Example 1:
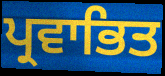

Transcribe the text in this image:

ਪ੍ਰਵਾਭਿਤ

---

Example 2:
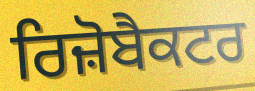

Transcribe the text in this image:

ਰਿਜ਼ੋਬੈਕਟਰ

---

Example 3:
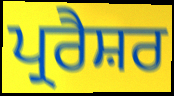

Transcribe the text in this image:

ਪ੍ਰਰੈਸ਼ਰ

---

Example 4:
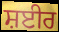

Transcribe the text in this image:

ਸ਼ਈਰ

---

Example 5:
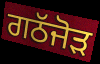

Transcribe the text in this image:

ਗਠੱਜੋੜ